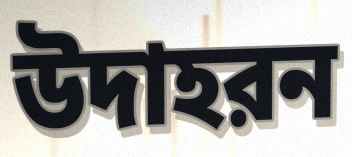
উদাহরন